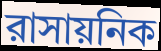
রাসায়নিক